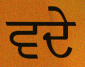
ਵਦੇ